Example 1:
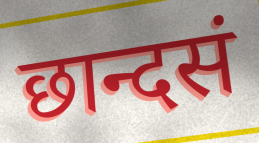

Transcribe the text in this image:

छान्दसं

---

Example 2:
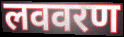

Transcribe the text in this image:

लववरण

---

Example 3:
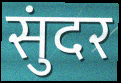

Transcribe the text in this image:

सुंदर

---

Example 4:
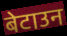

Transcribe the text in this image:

बेटाउन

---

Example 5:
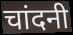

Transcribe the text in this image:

चांदनी